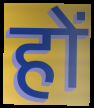
हों